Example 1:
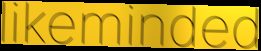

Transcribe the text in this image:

likeminded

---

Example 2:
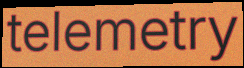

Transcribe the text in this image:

telemetry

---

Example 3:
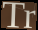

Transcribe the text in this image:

Tr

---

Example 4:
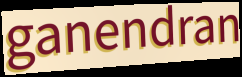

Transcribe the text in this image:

ganendran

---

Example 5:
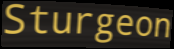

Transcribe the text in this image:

Sturgeon